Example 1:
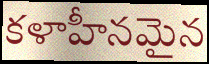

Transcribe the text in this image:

కళాహీనమైన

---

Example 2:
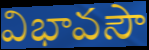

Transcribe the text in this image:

విభావసౌ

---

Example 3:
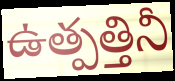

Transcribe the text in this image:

ఉత్పత్తినీ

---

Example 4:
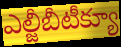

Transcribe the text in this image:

ఎల్జీబీటీక్యూ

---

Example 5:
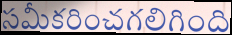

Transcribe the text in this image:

సమీకరించగలిగింది